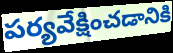
పర్యవేక్షించడానికి